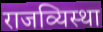
राजव्यिस्था